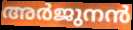
അർജുനൻ